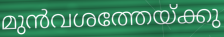
മുൻവശത്തേയ്ക്കു